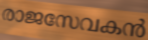
രാജസേവകൻ